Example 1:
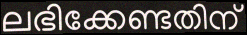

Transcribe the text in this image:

ലഭിക്കേണ്ടതിന്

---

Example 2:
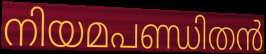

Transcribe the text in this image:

നിയമപണ്ഡിതൻ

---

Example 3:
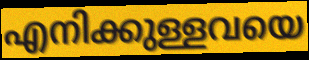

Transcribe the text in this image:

എനിക്കുള്ളവയെ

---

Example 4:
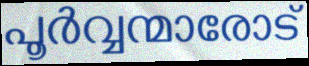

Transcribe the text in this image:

പൂർവ്വന്മാരോട്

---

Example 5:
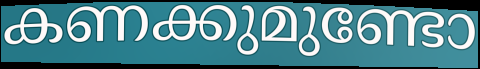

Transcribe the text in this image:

കണക്കുമുണ്ടോ